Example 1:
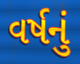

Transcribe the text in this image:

વર્ષનું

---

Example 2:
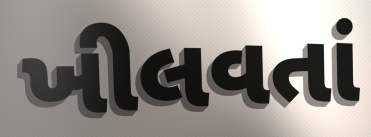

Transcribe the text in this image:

ખીલવતાં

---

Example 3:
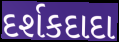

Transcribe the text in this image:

દર્શકદાદા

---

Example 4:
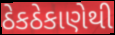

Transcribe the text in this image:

ઠેકઠેકાણેથી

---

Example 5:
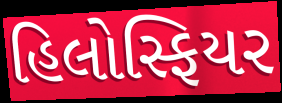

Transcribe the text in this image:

હિલોસ્ફિયર